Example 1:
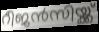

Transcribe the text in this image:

റീജൻസിയ്ക്ക്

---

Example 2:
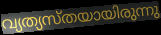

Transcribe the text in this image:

വ്യത്യസ്തയായിരുന്നു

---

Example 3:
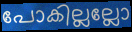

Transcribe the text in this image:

പോകില്ലല്ലോ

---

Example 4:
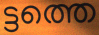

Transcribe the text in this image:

ട്ടത്തെ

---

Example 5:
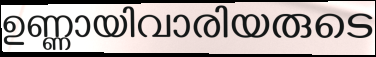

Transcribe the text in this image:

ഉണ്ണായിവാരിയരുടെ